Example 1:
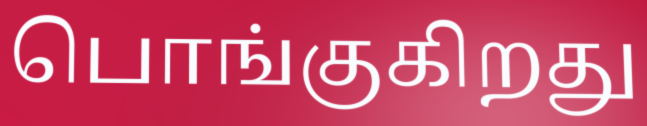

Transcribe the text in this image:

பொங்குகிறது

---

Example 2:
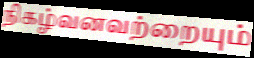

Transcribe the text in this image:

நிகழ்வனவற்றையும்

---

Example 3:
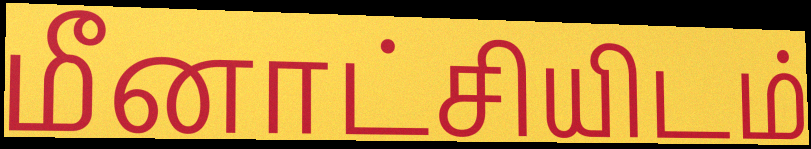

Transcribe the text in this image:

மீனாட்சியிடம்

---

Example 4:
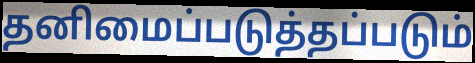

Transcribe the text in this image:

தனிமைப்படுத்தப்படும்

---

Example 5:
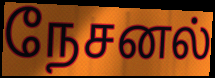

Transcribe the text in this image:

நேசனல்